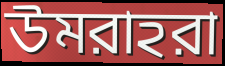
উমরাহরা